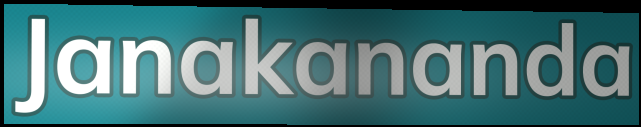
Janakananda